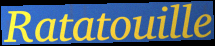
Ratatouille